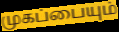
முகப்பையும்